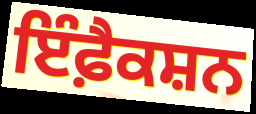
ਇੰਫ਼ੈਕਸ਼ਨ